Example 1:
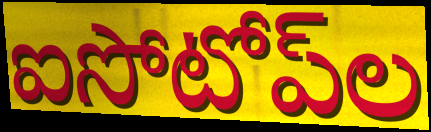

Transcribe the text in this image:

ఐసోటోప్‌ల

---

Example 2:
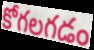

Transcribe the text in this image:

కోగలగడం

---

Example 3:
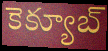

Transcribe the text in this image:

కెక్యూబ్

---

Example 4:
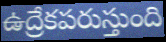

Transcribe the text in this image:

ఉద్రేకపరుస్తుంది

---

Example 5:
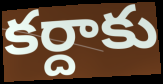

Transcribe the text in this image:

కర్దాకు